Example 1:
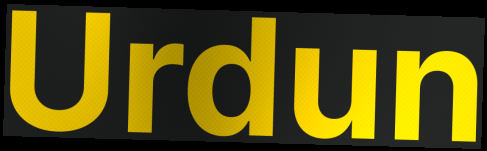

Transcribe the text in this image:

Urdun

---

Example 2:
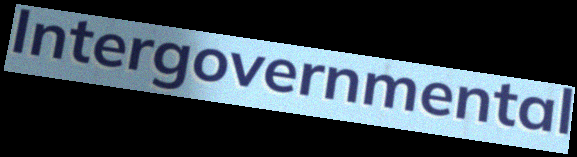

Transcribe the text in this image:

Intergovernmental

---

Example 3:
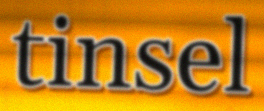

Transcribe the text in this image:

tinsel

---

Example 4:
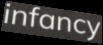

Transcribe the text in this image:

infancy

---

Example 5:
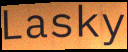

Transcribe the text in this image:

Lasky